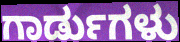
ಗಾರ್ಡುಗಳು